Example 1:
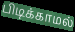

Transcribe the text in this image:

பிடிக்காமல்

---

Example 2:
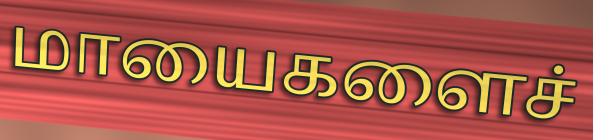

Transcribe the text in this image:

மாயைகளைச்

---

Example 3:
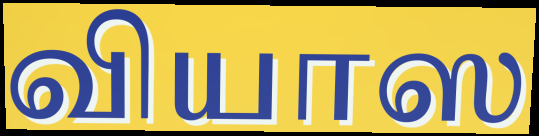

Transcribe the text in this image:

வியாஸ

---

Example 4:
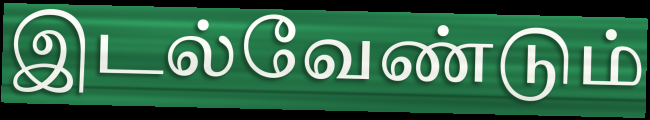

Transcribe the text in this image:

இடல்வேண்டும்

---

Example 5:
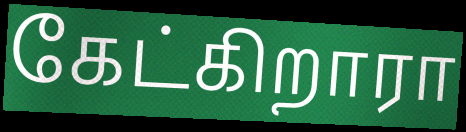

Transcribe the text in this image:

கேட்கிறாரா